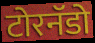
टोरनॅडो